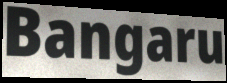
Bangaru